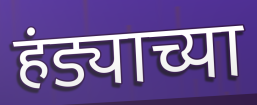
हंड्याच्या